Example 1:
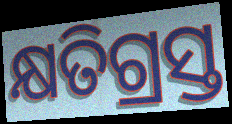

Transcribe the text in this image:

କ୍ଷତିଗ୍ରସ୍ତ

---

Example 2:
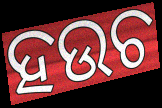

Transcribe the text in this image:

ହଉଚ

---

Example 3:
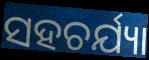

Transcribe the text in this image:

ସହଚର୍ଯ୍ୟା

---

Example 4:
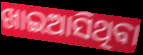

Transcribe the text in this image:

ଖାଇଆସିଥିବା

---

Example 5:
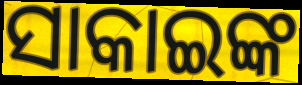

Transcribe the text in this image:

ସାକାଇଙ୍କ